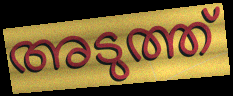
അടുത്ത്